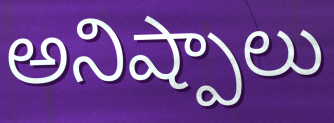
అనిష్పాలు